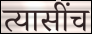
त्यासींच